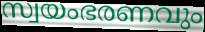
സ്വയംഭരണവും